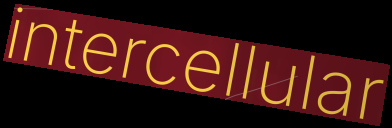
intercellular